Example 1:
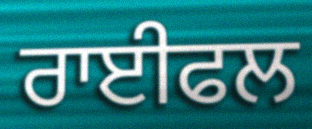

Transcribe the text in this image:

ਰਾਈਫਲ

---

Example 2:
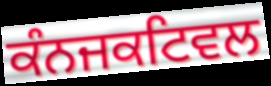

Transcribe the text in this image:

ਕੰਨਜਕਟਿਵਲ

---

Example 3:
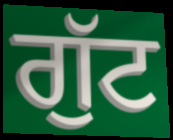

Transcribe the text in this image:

ਗੁੱਟ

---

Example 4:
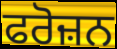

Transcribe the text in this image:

ਫਰੋਜ਼ਨ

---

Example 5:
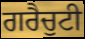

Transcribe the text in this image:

ਗਰੈਚੁਟੀ